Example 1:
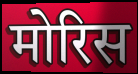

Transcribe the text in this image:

मोरिस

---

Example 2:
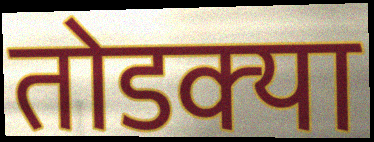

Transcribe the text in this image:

तोडक्‍या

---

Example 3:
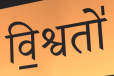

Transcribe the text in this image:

वि॒श्वतो॑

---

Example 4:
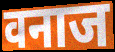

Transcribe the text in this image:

वनाज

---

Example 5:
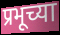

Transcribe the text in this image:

प्रभूच्या